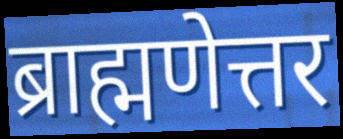
ब्राह्मणेत्तर